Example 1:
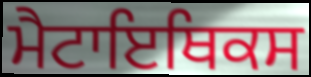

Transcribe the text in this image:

ਮੈਟਾਇਥਿਕਸ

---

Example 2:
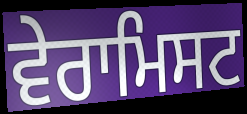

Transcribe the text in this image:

ਵੇਰਾਮਿਸਟ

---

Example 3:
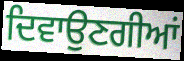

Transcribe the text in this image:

ਦਿਵਾਉਣਗੀਆਂ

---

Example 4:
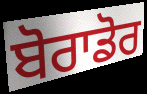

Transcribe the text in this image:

ਬੋਰਾਡੋਰ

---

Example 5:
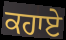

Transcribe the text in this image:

ਕਹਾਏ